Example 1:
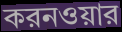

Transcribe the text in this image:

করনওয়ার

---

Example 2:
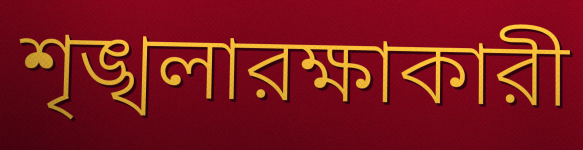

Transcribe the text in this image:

শৃঙ্খলারক্ষাকারী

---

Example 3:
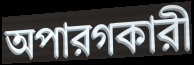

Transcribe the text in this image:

অপারগকারী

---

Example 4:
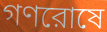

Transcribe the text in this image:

গণরোষে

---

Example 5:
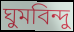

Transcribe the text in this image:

ঘুমবিন্দু